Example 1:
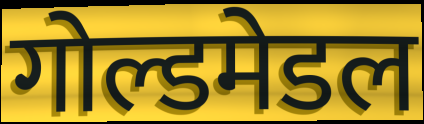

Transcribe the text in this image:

गोल्डमेडल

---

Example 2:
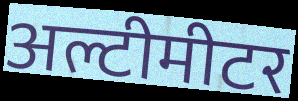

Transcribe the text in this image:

अल्टीमीटर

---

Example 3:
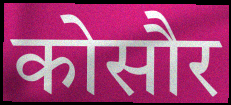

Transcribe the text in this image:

कोसौर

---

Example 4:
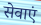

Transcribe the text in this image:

सेवाएं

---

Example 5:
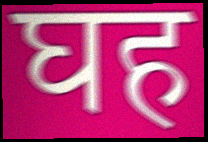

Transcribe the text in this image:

घह